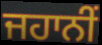
ਜਹਾਨੀਂ